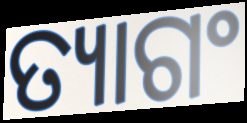
ତ୍ୟାଗଂ